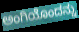
ಅಂಗಿಯೊಂದನ್ನು